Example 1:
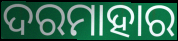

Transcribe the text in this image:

ଦରମାହାର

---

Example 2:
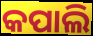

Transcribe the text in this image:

କପାଲି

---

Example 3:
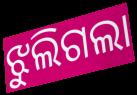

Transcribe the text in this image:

ଝୁଲିଗଲା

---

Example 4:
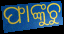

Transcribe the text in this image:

ଫାଙ୍କୁଚୁ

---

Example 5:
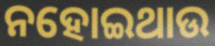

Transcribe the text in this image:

ନହୋଇଥାଉ